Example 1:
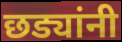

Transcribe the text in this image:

छड्यांनी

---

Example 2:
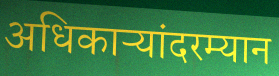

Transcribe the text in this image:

अधिकाऱ्यांदरम्यान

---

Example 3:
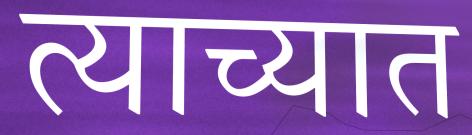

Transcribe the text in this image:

त्याच्यात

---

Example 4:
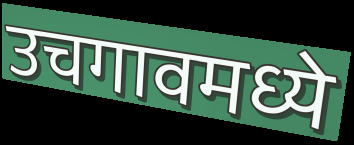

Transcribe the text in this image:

उचगावमध्ये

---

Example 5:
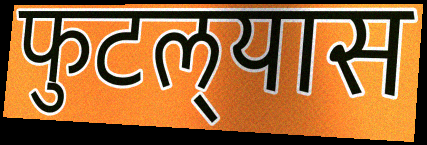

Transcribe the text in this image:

फुटल्यास